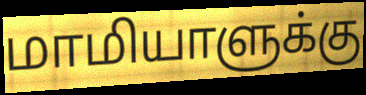
மாமியாளுக்கு